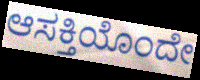
ಆಸಕ್ತಿಯೊಂದೇ